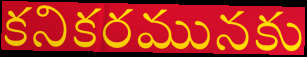
కనికరమునకు